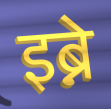
इब्ने